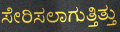
ಸೇರಿಸಲಾಗುತ್ತಿತ್ತು